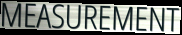
MEASUREMENT